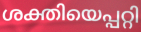
ശക്തിയെപ്പറ്റി